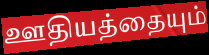
ஊதியத்தையும்